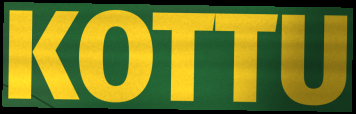
KOTTU